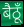
बैठूँ